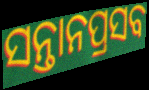
ସନ୍ତାନପ୍ରସବ